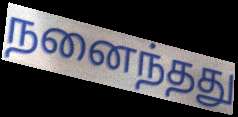
நனைந்தது